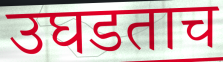
उघडताच